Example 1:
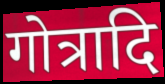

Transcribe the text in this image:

गोत्रादि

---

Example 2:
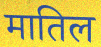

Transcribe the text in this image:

मातिल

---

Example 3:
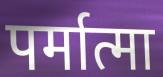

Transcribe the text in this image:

पर्मात्मा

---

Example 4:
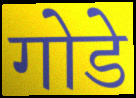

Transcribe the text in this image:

गोडे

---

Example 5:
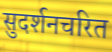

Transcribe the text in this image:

सुदर्शनचरित